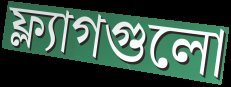
ফ্ল্যাগগুলো